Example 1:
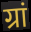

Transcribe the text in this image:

ग्रां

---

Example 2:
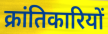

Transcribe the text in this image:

क्रांतिकारियों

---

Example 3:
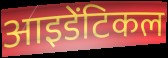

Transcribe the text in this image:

आइडेंटिकल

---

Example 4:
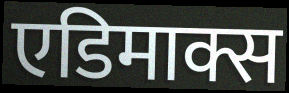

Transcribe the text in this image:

एडिमाक्स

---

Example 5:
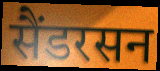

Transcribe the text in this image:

सैंडरसन